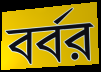
বর্বর